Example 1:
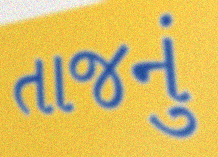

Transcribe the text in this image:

તાજનું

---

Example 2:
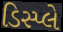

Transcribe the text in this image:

ડિસ્પ્લે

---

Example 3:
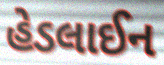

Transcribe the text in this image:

હેડલાઈન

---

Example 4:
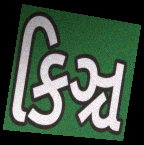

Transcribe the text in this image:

કિઞ્ચ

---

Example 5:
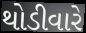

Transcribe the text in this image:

થોડીવારે